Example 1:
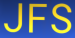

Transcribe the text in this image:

JFS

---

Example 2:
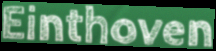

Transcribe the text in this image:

Einthoven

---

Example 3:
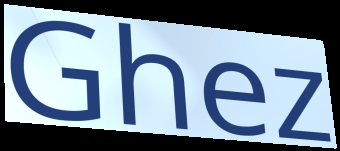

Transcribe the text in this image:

Ghez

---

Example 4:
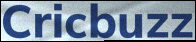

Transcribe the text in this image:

Cricbuzz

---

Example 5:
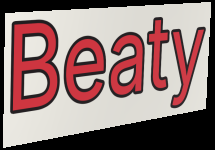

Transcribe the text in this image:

Beaty